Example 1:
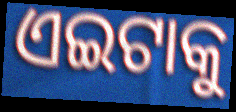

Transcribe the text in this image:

ଏଇଟାକୁ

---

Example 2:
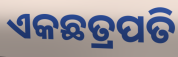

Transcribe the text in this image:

ଏକଛତ୍ରପତି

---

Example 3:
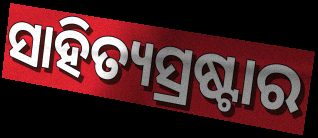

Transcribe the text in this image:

ସାହିତ୍ୟସ୍ରଷ୍ଟାର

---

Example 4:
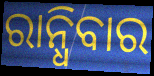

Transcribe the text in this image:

ରାନ୍ଧିବାର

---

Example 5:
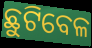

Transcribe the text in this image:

ଛୁଟିବେଳ